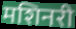
मशिनरी